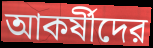
আকর্ষীদের